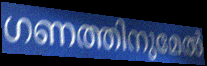
ഗണത്തിനുമേൽ